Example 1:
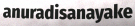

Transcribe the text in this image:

anuradisanayake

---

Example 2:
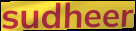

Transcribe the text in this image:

sudheer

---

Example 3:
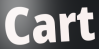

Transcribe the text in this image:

Cart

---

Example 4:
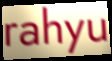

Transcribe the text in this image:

rahyu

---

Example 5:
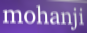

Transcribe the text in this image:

mohanji